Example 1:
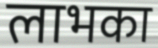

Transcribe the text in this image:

लाभका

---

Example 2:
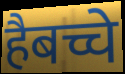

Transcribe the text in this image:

हैबच्चे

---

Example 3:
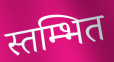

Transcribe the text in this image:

स्तम्भित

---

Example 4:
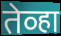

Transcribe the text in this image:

तेव्हा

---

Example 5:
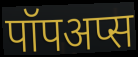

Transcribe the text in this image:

पॉपअप्स